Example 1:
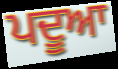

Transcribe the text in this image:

ਪਦੂਆ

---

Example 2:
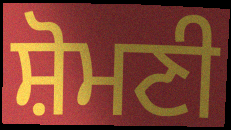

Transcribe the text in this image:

ਸ਼ੋਮਣੀ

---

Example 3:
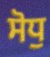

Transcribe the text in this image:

ਸੋਧੁ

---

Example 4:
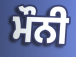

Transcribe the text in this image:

ਮੌਨੀ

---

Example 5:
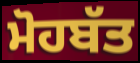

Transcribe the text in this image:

ਮੋਹਬੱਤ